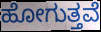
ಹೋಗುತ್ತವೆ